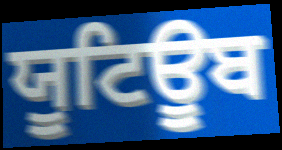
ਯੂਟਿਊਬ